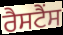
ਰੈਸਟੈਂਸ